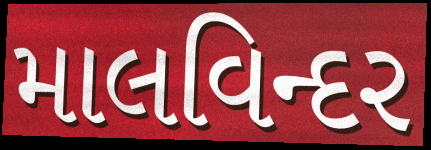
માલવિન્દર